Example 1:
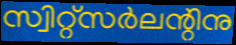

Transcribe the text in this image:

സ്വിറ്റ്സർലന്റിനു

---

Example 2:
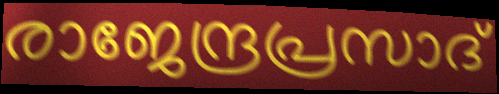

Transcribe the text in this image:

രാജേന്ദ്രപ്രസാദ്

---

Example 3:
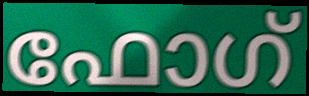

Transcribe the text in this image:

ഫോഗ്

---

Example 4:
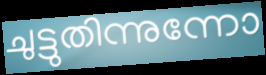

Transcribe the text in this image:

ചുട്ടുതിന്നുന്നോ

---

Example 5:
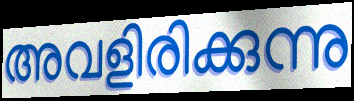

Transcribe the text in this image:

അവളിരിക്കുന്നു